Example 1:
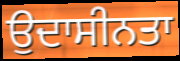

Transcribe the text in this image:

ਉਦਾਸੀਨਤਾ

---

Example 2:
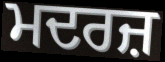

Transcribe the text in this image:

ਮਦਰਜ਼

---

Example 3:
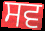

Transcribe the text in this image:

ਸਵ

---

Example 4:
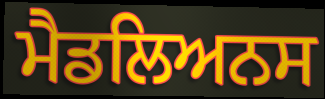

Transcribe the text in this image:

ਮੈਡਲਿਅਨਸ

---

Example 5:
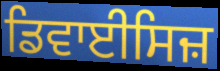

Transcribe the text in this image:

ਡਿਵਾਈਸਿਜ਼